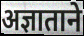
अज्ञाताने